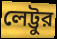
লেট্টুর